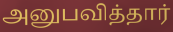
அனுபவித்தார்